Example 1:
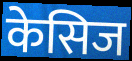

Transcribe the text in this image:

केसिज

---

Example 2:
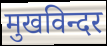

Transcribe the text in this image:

मुखविन्दर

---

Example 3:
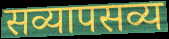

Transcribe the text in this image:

सव्यापसव्य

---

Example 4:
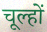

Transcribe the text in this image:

चूल्हों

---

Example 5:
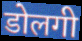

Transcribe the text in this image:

डोलगी